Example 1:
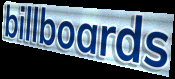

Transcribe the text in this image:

billboards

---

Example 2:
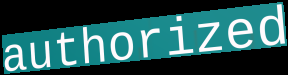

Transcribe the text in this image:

authorized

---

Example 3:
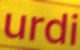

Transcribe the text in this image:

urdi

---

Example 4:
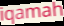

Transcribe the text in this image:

iqamah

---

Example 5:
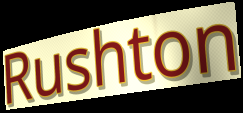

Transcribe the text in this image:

Rushton